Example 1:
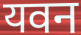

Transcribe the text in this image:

यवन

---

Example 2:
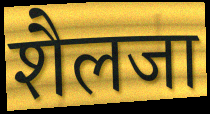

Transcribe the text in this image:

शैलजा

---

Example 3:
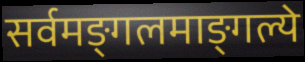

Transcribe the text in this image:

सर्वमङ्गलमाङ्गल्ये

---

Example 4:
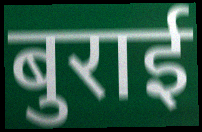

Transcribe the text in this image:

बुराई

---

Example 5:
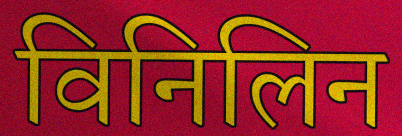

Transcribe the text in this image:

विनिलिन